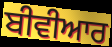
ਬੀਵੀਆਰ